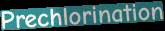
Prechlorination